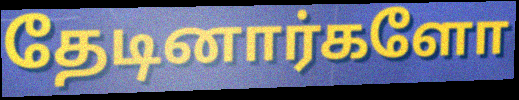
தேடினார்களோ